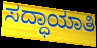
ಸದ್ಧಾಯಾತಿ